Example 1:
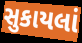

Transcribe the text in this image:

સુકાયલાં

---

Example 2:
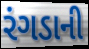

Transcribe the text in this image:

રંગડાની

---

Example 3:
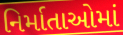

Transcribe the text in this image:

નિર્માતાઓમાં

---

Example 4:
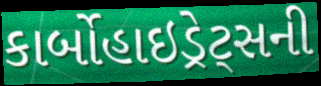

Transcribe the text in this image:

કાર્બોહાઇડ્રેટ્સની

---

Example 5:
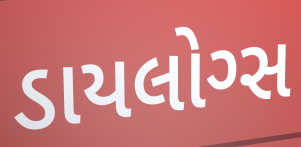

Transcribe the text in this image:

ડાયલોગ્સ